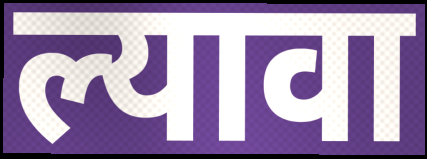
ल्यावा